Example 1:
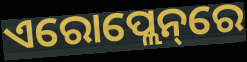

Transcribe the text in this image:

ଏରୋପ୍ଲେନ୍‌ରେ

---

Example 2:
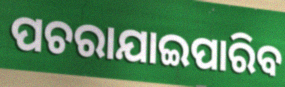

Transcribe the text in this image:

ପଚରାଯାଇପାରିବ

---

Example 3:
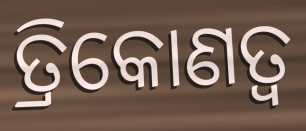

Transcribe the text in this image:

ତ୍ରିକୋଣତ୍ଵ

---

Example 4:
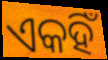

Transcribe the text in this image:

ଏକହିଁ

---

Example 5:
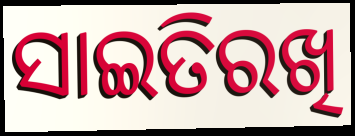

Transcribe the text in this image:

ସାଇତିରଖି